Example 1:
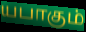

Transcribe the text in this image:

யபாகும்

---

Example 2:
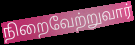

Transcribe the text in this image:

நிறைவேற்றுவார்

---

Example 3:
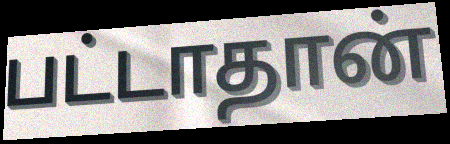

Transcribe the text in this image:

பட்டாதான்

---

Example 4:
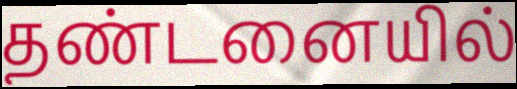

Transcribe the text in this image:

தண்டனையில்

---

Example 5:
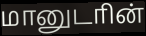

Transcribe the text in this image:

மானுடரின்